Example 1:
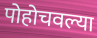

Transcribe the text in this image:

पोहोचवल्या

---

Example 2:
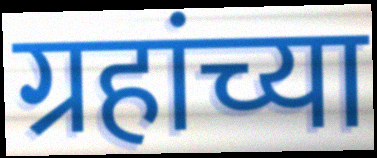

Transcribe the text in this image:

ग्रहांच्या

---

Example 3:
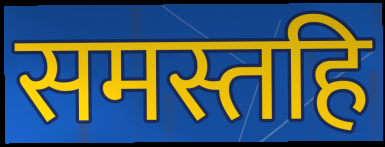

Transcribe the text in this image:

समस्तहि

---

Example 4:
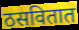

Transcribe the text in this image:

ठसवितात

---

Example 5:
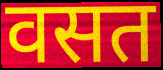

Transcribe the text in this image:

वसत